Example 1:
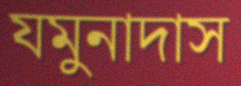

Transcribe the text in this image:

যমুনাদাস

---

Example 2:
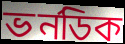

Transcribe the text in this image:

ভর্নডিক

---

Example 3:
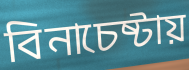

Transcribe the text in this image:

বিনাচেষ্টায়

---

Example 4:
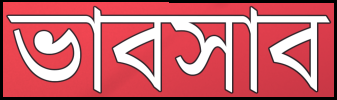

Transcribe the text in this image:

ভাবসাব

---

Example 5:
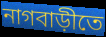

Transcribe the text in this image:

নাগবাড়ীতে